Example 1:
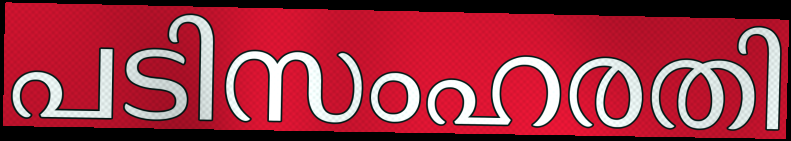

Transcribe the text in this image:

പടിസംഹരതി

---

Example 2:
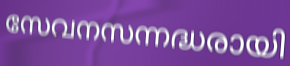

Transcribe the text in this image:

സേവനസന്നദ്ധരായി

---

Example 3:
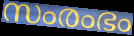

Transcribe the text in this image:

സംരംഭം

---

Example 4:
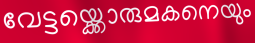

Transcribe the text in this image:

വേട്ടയ്ക്കൊരുമകനെയും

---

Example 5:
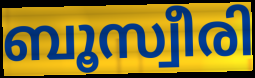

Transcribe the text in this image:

ബൂസ്വീരി